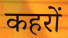
कहरों